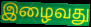
இழைவது